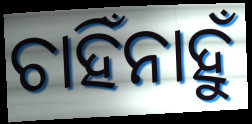
ଚାହିଁନାହୁଁ